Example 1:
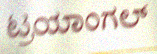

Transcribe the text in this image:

ಟ್ರಯಾಂಗಲ್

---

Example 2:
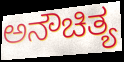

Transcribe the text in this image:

ಅನೌಚಿತ್ಯ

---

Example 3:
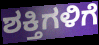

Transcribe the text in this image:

ಶಕ್ತಿಗಳಿಗೆ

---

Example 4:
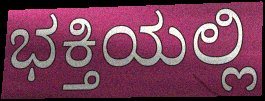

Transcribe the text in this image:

ಭಕ್ತಿಯಲ್ಲಿ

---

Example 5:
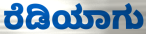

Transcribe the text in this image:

ರೆಡಿಯಾಗು